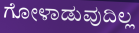
ಗೋಳಾಡುವುದಿಲ್ಲ